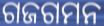
ଗଜଗମନ